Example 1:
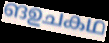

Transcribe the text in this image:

ങഉചകഥ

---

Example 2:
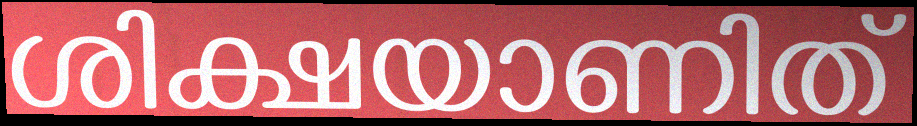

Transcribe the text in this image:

ശിക്ഷയാണിത്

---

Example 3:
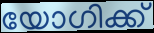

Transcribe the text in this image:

യോഗിക്ക്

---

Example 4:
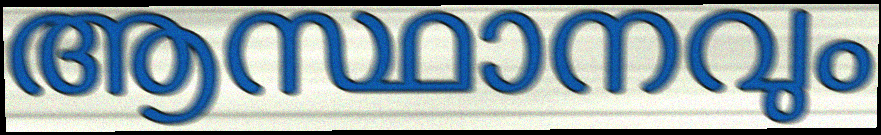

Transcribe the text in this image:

ആസ്ഥാനവും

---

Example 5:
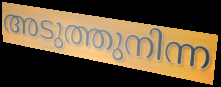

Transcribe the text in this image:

അടുത്തുനിന്ന